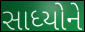
સાધ્યોને